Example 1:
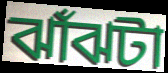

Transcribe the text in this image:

ঝাঁঝটা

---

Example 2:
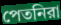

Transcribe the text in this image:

পেতনিরা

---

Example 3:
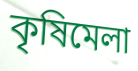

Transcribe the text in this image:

কৃষিমেলা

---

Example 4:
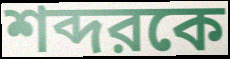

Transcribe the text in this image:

শব্দরকে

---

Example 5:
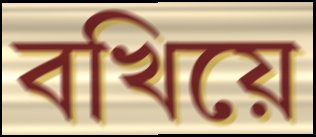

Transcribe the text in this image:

বখিয়ে